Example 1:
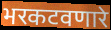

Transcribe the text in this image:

भरकटवणारे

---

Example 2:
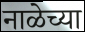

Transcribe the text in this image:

नाळेच्या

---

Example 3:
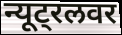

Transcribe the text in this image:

न्यूट्रलवर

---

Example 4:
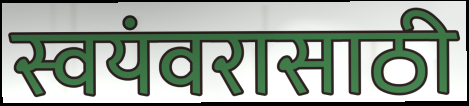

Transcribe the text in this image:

स्वयंवरासाठी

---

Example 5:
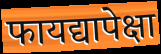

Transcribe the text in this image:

फायद्यापेक्षा